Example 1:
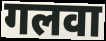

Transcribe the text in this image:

गलवा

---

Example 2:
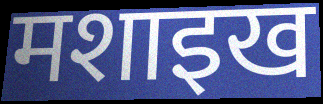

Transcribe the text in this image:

मशाइख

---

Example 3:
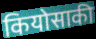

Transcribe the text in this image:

कियोसाकी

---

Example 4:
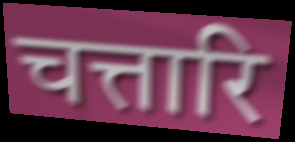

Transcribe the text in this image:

चत्तारि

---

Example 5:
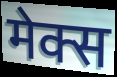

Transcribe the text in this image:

मेक्स